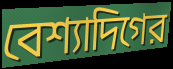
বেশ্যাদিগের